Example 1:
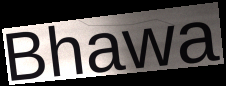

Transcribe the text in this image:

Bhawa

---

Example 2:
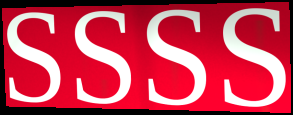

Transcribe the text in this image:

SSSS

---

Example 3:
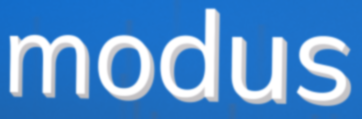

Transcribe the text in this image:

modus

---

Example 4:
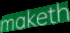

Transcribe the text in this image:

maketh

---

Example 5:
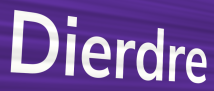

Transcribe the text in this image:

Dierdre